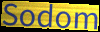
Sodom